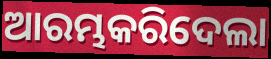
ଆରମ୍ଭକରିଦେଲା